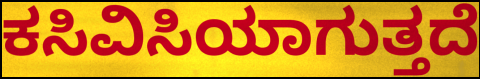
ಕಸಿವಿಸಿಯಾಗುತ್ತದೆ